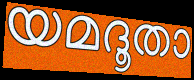
യമദൂതാ